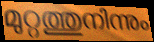
മുറ്റത്തുനിന്നും